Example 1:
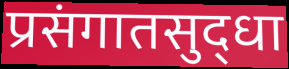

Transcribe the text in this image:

प्रसंगातसुद्धा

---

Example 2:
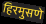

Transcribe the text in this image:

हिरमुसणे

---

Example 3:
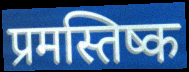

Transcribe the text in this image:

प्रमस्तिष्क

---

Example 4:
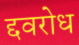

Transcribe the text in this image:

द्दवरोध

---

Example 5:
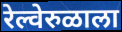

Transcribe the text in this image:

रेल्वेरुळाला